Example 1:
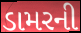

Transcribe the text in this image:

ડામરની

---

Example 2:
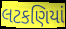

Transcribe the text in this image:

લટકણિયાં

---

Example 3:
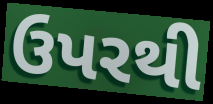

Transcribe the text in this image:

ઉપરથી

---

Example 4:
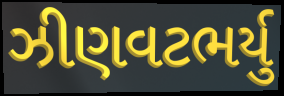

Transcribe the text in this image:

ઝીણવટભર્યુ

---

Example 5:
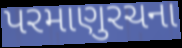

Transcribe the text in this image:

પરમાણુરચના